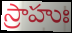
స్రాహుః